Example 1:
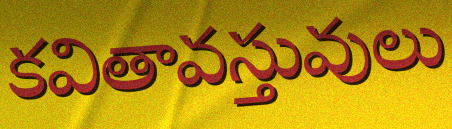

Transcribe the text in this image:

కవితావస్తువులు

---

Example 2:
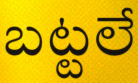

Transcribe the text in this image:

బట్టలే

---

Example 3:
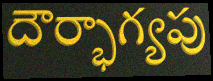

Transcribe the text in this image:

దౌర్భాగ్యపు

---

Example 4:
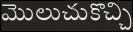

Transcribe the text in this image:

మొలుచుకొచ్చి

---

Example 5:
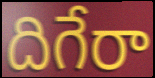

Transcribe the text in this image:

దిగేరా